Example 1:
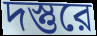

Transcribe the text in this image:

দস্তুরে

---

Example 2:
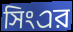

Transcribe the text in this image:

সিংএর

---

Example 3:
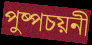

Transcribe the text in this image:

পুষ্পচয়নী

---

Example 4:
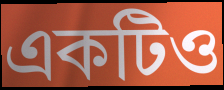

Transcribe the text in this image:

একটিও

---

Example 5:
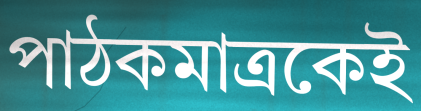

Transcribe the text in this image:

পাঠকমাত্রকেই